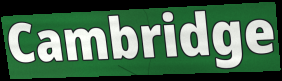
Cambridge